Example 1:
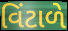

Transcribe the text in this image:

વિંટાળે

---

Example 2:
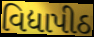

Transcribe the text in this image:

વિદ્યાપીઠ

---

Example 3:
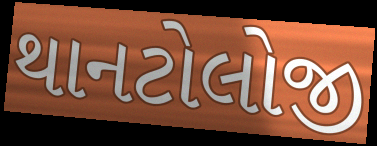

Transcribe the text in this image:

થાનટોલોજી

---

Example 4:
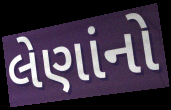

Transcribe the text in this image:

લેણાંનો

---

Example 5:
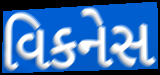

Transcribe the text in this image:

વિકનેસ